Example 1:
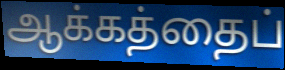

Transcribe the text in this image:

ஆக்கத்தைப்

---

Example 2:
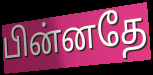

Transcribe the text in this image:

பின்னதே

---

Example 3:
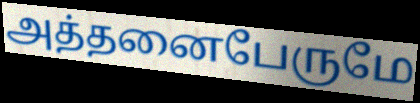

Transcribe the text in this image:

அத்தனைபேருமே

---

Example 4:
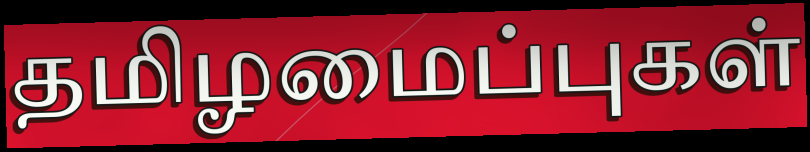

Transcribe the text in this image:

தமிழமைப்புகள்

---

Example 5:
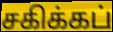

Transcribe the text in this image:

சகிக்கப்